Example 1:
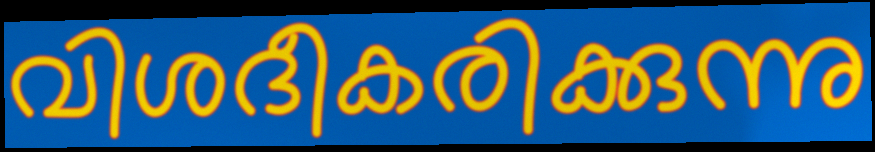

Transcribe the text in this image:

വിശദീകരിക്കുന്നു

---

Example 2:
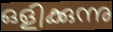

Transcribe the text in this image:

ഒളിക്കുന്നു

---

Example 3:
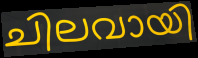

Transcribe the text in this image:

ചിലവായി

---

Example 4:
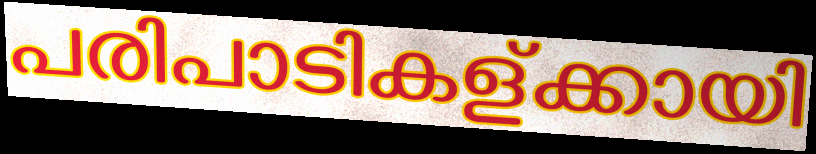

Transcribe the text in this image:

പരിപാടികള്ക്കായി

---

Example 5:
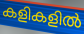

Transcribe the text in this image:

കളികളിൽ